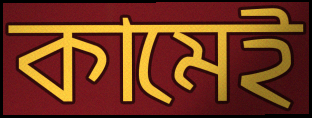
কামেই